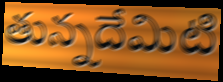
తున్నదేమిటి